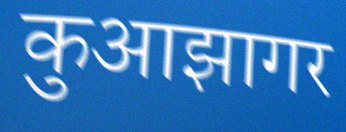
कुआझागर